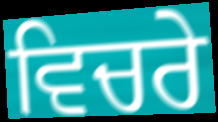
ਵਿਚਰੇ